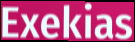
Exekias